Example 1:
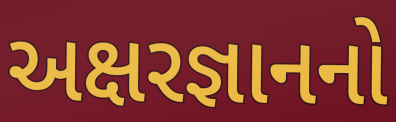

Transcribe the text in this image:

અક્ષરજ્ઞાનનો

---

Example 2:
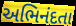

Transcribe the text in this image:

અભિનંદતા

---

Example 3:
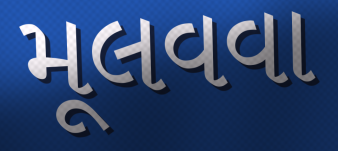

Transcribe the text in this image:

મૂલવવા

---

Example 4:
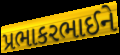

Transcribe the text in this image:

પ્રભાકરભાઈને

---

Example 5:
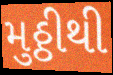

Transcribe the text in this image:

મુઠ્ઠીથી